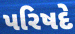
પરિષદે